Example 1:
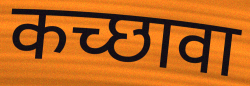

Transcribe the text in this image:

कच्छावा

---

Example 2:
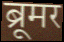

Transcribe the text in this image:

ब्रूमर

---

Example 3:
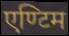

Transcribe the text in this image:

एण्टिम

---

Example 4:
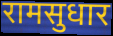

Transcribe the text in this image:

रामसुधार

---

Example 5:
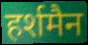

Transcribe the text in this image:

हर्शमैन